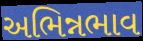
અભિન્નભાવ